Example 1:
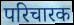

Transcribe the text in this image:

परिचारक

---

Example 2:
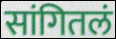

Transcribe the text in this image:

सांगितलं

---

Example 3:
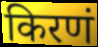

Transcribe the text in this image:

किरणं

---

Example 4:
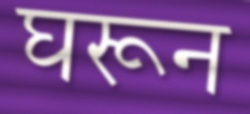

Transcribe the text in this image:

घरून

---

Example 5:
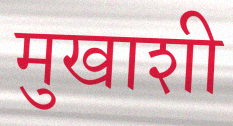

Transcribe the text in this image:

मुखाशी